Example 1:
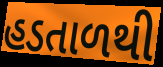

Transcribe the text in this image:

હડતાળથી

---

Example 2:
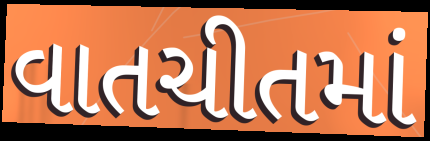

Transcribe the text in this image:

વાતચીતમાં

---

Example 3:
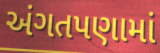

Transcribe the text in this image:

અંગતપણામાં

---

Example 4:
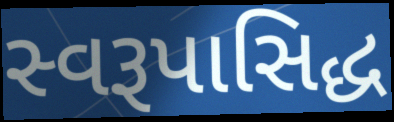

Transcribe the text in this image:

સ્વરૂપાસિદ્ધ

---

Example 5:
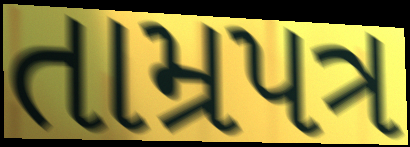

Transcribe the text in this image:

તામ્રપત્ર